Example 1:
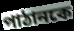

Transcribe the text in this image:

পাঠানকে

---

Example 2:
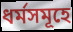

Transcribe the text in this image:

ধর্মসমূহে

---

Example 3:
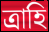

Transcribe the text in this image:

ত্রাহি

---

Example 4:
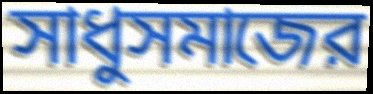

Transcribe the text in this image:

সাধুসমাজের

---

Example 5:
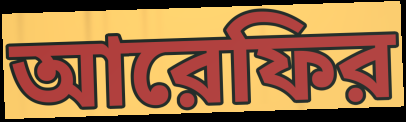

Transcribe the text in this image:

আরেফির